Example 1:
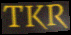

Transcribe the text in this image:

TKR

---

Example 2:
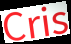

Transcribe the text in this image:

Cris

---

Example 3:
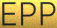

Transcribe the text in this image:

EPP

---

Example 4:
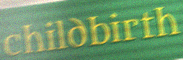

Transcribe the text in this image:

childbirth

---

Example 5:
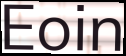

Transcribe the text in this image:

Eoin